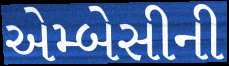
એમ્બેસીની